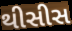
થીસીસ